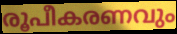
രൂപീകരണവും